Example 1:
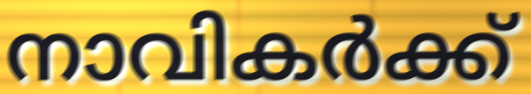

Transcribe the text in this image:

നാവികർക്ക്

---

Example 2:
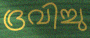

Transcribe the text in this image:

ദ്രവിച്ചു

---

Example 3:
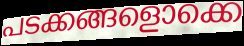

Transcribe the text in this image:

പടക്കങ്ങളൊക്കെ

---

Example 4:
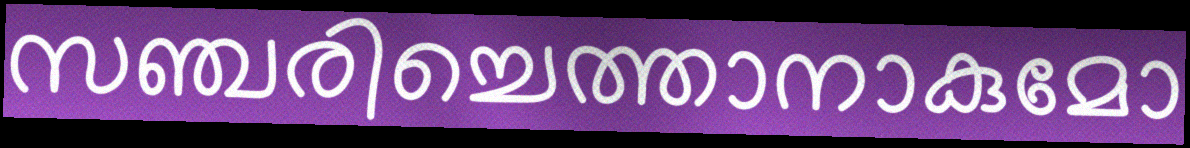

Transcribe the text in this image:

സഞ്ചരിച്ചെത്താനാകുമോ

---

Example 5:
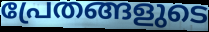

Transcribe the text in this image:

പ്രേതങ്ങളുടെ